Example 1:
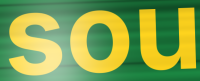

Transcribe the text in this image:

sou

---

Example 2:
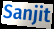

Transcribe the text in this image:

Sanjit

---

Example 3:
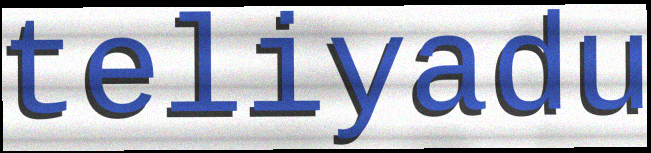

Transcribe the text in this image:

teliyadu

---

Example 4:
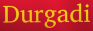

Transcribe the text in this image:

Durgadi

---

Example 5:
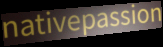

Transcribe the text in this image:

nativepassion